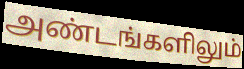
அண்டங்களிலும்